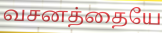
வசனத்தையே